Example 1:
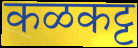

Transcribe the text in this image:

कळकट्ट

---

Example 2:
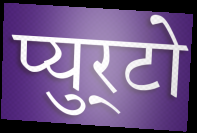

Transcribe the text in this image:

प्युर्टो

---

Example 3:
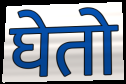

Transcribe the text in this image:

घेतो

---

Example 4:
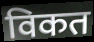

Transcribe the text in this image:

विकत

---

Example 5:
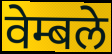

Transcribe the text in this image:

वेम्बले